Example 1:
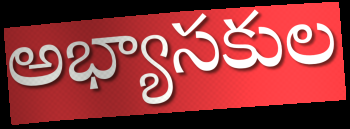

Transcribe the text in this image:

అభ్యాసకుల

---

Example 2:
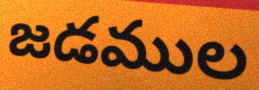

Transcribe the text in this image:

జడముల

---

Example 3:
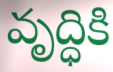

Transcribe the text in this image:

వృద్ధికి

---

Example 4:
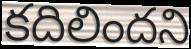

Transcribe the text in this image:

కదిలిందని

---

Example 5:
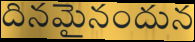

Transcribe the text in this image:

దినమైనందున